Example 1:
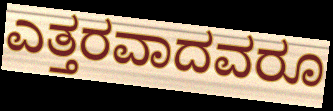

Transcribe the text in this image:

ಎತ್ತರವಾದವರೂ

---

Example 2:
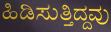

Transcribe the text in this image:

ಹಿಡಿಸುತ್ತಿದ್ದವು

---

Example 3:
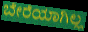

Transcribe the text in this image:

ಬೇರೆಯಾಗಿಲ್ಲ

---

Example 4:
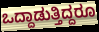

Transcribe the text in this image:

ಒದ್ದಾಡುತ್ತಿದ್ದರೂ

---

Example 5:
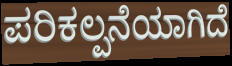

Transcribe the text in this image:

ಪರಿಕಲ್ಪನೆಯಾಗಿದೆ